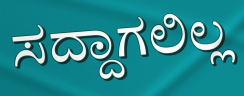
ಸದ್ದಾಗಲಿಲ್ಲ